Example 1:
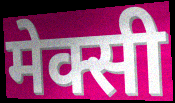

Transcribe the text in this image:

मेक्सी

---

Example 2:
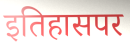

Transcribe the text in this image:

इतिहासपर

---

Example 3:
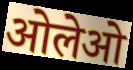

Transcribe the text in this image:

ओलेओ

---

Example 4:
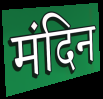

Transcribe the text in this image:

मंदिन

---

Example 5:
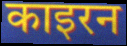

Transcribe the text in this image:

काइरन